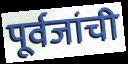
पूर्वजांची